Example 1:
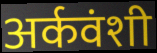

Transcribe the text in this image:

अर्कवंशी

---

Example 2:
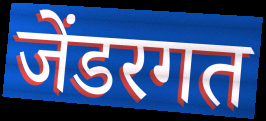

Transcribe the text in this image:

जेंडरगत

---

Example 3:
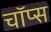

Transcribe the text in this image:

चॉप्स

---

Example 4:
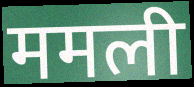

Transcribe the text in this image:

ममली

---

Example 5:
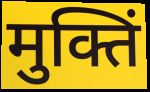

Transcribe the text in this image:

मुक्तिं